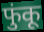
फुंकू